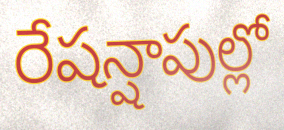
రేషన్షాపుల్లో